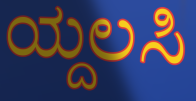
ಯ್ದಲಸಿ